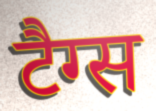
टैग्स